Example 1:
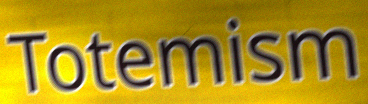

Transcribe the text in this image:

Totemism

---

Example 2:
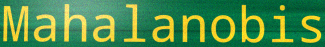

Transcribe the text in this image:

Mahalanobis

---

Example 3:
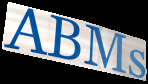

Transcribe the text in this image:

ABMs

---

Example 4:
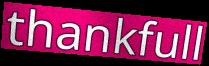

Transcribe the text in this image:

thankfull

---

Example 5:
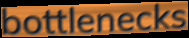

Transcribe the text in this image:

bottlenecks